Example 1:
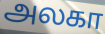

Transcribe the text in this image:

அலகா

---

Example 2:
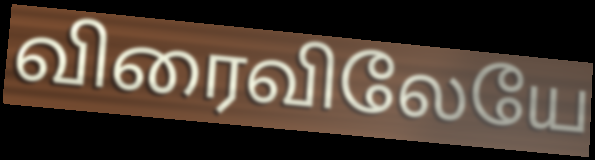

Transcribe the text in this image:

விரைவிலேயே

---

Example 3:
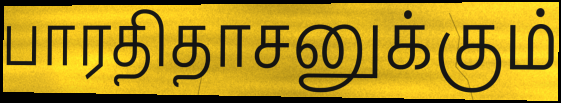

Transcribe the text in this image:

பாரதிதாசனுக்கும்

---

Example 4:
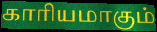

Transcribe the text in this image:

காரியமாகும்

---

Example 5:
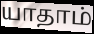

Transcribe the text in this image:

யாதாம்